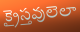
క్రైస్తవులెలా